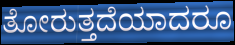
ತೋರುತ್ತದೆಯಾದರೂ